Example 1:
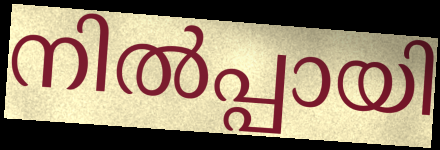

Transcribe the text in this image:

നിൽപ്പായി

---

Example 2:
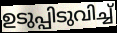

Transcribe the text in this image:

ഉടുപ്പിടുവിച്ച്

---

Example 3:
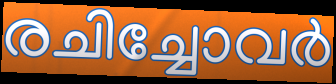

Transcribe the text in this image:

രചിച്ചോവർ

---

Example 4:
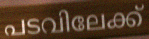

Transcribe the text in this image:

പടവിലേക്ക്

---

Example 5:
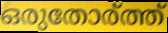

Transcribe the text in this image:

ഒരുതോര്ത്ത്